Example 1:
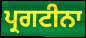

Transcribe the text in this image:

ਪ੍ਰਗਟੀਨਾ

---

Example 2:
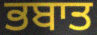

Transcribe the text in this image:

ਭਬਾਤ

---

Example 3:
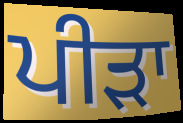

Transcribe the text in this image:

ਪੀੜਾ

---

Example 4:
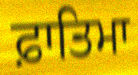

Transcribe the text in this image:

ਫ਼ਾਤਿਮਾ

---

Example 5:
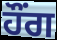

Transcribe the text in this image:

ਹੌਂਗ